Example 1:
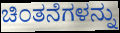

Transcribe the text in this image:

ಚಿಂತನೆಗಳನ್ನು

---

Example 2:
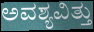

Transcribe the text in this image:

ಅವಶ್ಯವಿತ್ತು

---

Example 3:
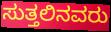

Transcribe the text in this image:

ಸುತ್ತಲಿನವರು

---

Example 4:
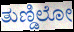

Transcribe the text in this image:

ತುಣ್ಡಿಲೋ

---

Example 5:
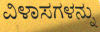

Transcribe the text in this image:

ವಿಳಾಸಗಳನ್ನು